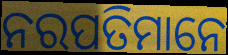
ନରପତିମାନେ